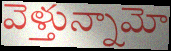
వెళ్తున్నామో